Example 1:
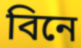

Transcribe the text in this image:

বিনে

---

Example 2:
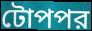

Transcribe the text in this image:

টোপপর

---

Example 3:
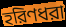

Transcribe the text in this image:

হরিণধরা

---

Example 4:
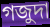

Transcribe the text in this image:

গজুদা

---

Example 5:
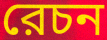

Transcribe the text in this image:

রেচন